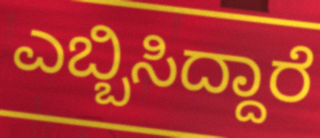
ಎಬ್ಬಿಸಿದ್ದಾರೆ